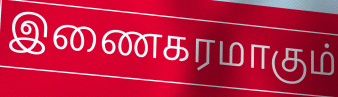
இணைகரமாகும்